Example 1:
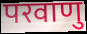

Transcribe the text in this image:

परवाणु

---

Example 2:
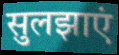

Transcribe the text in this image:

सुलझाएं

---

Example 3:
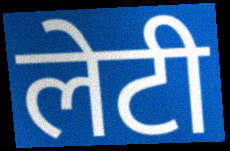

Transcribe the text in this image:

लेटी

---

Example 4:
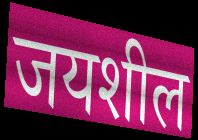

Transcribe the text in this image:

जयशील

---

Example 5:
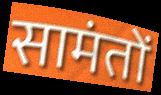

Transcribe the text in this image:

सामंतों